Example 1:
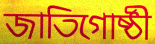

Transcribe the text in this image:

জাতিগোষ্ঠী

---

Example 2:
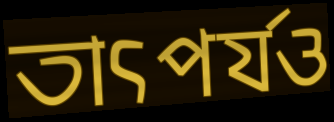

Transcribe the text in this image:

তাৎপর্যও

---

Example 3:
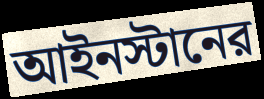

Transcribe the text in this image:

আইনস্টানের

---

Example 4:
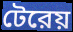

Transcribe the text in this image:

টেরেয়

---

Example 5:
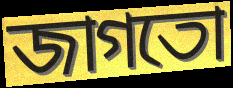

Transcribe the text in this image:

জাগতো